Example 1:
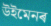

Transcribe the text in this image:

উইমেনৰ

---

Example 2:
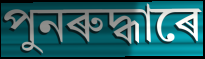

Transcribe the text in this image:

পুনৰুদ্ধাৰে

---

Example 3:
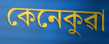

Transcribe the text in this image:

কেনেকুৱা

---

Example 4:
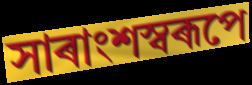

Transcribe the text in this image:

সাৰাংশস্বৰূপে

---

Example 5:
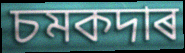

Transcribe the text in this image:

চমকদাৰ